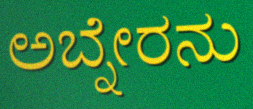
ಅಬ್ನೇರನು